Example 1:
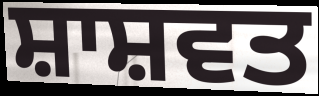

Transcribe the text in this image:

ਸ਼ਾਸ਼ਵਤ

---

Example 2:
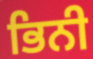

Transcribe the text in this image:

ਭਿਨੀ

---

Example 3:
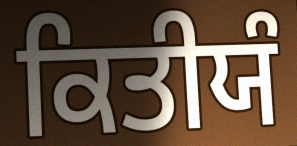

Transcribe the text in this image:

ਕਿਤੀਯੰ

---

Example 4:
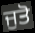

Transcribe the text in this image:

ਜੁਤੋ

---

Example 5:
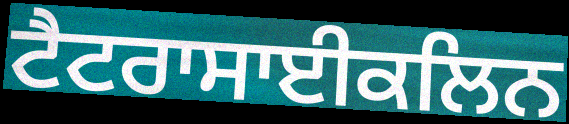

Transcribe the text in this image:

ਟੈਟਰਾਸਾਈਕਲਿਨ